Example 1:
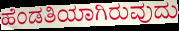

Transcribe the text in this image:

ಹೆಂಡತಿಯಾಗಿರುವುದು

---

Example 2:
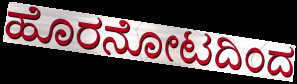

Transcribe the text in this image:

ಹೊರನೋಟದಿಂದ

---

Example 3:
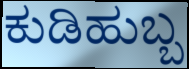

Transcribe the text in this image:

ಕುಡಿಹುಬ್ಬ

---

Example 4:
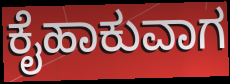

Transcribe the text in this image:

ಕೈಹಾಕುವಾಗ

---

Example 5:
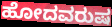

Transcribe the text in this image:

ಹೋದವರುಷ